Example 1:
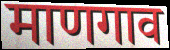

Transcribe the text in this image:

माणगाव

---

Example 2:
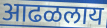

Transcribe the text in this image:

आढळलाय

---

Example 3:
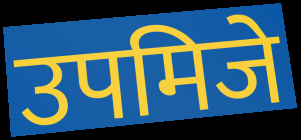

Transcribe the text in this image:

उपमिजे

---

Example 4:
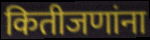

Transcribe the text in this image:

कितीजणांना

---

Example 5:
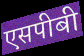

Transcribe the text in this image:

एसपीबी